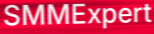
SMMExpert